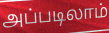
அப்படிலாம்